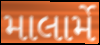
માલાર્મે